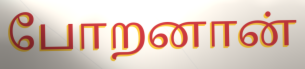
போறனான்